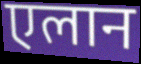
एलान